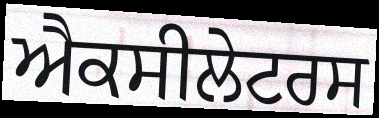
ਐਕਸੀਲੇਟਰਸ